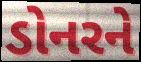
ડોનરને